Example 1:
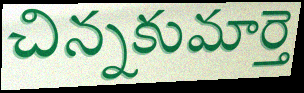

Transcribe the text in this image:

చిన్నకుమార్తె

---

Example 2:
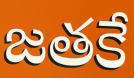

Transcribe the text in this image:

జతకే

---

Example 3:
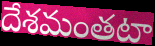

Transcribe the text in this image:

దేశమంతటా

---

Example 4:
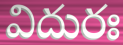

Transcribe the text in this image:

విదురః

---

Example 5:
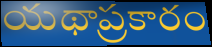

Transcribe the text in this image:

యథాప్రకారం